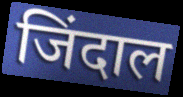
जिंदाल